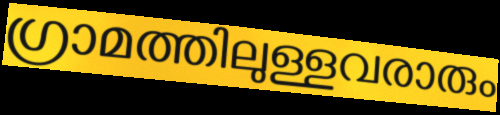
ഗ്രാമത്തിലുള്ളവരാരും